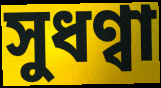
সুধণ্বা